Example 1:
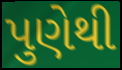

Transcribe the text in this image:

પુણેથી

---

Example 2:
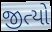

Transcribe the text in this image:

જીત્યો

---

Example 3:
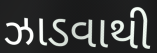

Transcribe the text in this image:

ઝાડવાથી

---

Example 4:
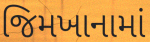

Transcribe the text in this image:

જિમખાનામાં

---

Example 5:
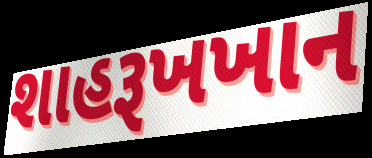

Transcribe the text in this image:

શાહરૂખખાન